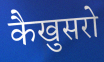
कैखुसरो